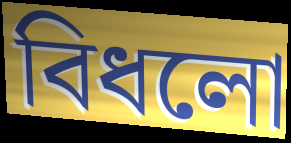
বিধলো